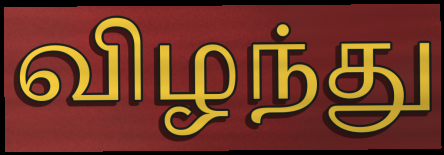
விழந்து